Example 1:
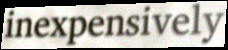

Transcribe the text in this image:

inexpensively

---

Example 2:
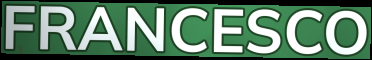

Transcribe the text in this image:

FRANCESCO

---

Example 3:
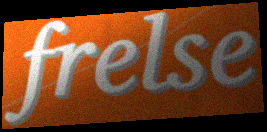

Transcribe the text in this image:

frelse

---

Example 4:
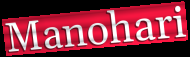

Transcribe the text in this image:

Manohari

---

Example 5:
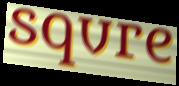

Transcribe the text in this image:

squre